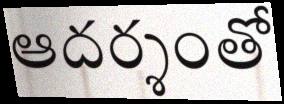
ఆదర్శంతో